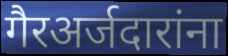
गैरअर्जदारांना